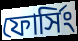
ফোর্সিং